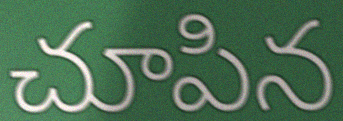
చూపిన